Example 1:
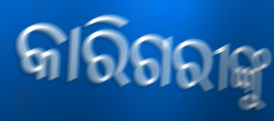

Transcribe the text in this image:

କାରିଗରୀଙ୍କୁ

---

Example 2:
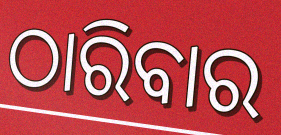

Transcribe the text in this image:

ଠାରିବାର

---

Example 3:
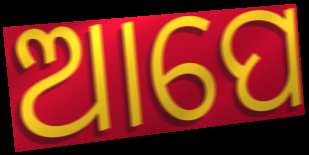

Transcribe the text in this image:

ଆପେ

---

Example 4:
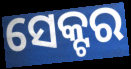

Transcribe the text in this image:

ସେକ୍ଟର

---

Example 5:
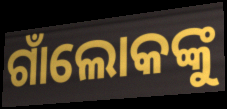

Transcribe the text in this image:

ଗାଁଲୋକଙ୍କୁ